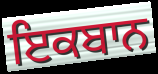
ਇਕਬਾਨ